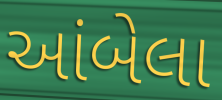
આંબેલા